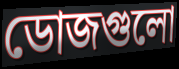
ডোজগুলো